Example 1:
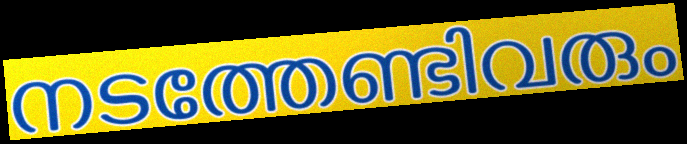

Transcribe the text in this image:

നടത്തേണ്ടിവരും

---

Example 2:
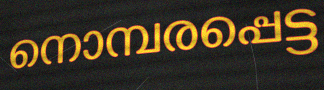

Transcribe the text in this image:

നൊമ്പരപ്പെട്ട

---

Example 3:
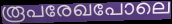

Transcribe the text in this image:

രൂപരേഖപോലെ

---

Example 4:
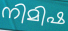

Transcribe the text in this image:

നിമിഷ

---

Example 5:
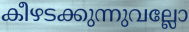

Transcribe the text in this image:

കീഴടക്കുന്നുവല്ലോ